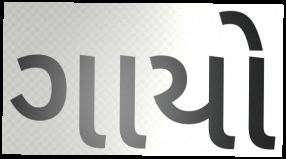
ગાયો